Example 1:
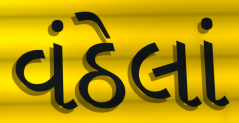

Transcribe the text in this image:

વંઠેલાં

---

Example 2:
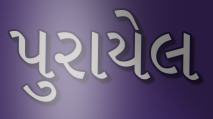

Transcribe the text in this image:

પુરાયેલ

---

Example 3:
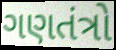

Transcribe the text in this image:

ગણતંત્રો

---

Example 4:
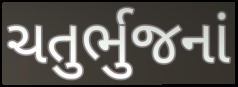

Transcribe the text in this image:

ચતુર્ભુજનાં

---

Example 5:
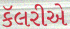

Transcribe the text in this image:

કૅલરીએ